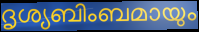
ദൃശ്യബിംബമായും